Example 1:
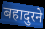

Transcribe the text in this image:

बहादुरने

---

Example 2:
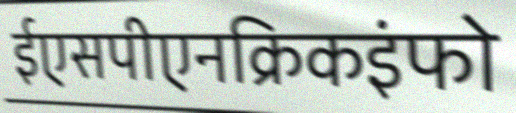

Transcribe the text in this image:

ईएसपीएनक्रिकइंफो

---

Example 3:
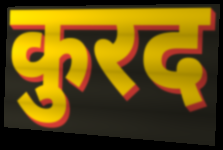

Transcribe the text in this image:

कुरद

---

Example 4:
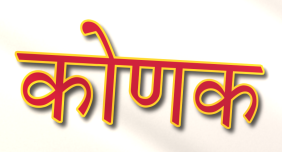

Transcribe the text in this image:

कोणक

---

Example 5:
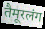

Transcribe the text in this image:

तैमूरलंग